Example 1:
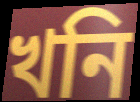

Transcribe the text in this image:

খনি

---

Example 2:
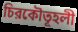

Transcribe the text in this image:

চিরকৌতূহলী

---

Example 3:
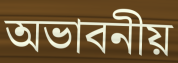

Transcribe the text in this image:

অভাবনীয়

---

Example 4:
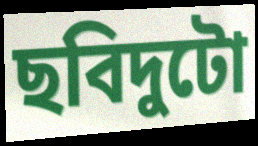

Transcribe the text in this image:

ছবিদুটো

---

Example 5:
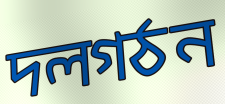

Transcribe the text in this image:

দলগঠন